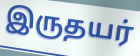
இருதயர்